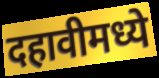
दहावीमध्ये